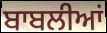
ਬਾਬਲੀਆਂ